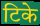
टिके